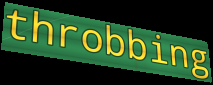
throbbing